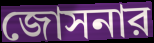
জোসনার